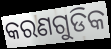
କରଣଗୁଡିକ